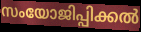
സംയോജിപ്പിക്കൽ